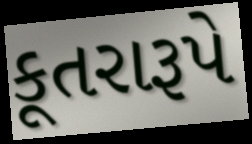
કૂતરારૂપે